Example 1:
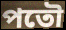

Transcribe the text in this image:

পতৌ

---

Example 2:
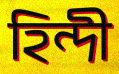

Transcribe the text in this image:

হিন্দী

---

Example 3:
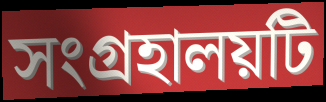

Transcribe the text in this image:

সংগ্রহালয়টি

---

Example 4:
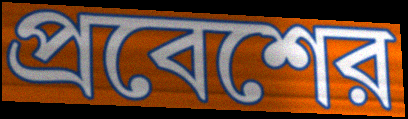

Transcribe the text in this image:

প্রবেশের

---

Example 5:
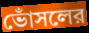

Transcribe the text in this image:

ভোঁসলের